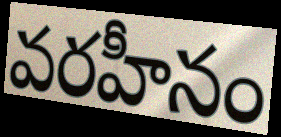
వరహీనం